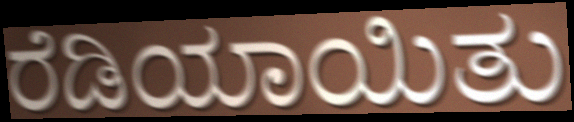
ರೆಡಿಯಾಯಿತು